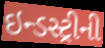
ઇન્ડસ્ટ્રીની